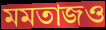
মমতাজও